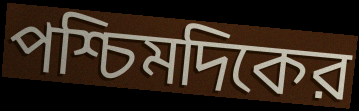
পশ্চিমদিকের